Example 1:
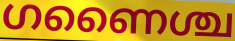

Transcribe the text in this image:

ഗണൈശ്ച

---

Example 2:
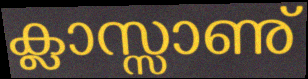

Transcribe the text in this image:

ക്ലാസ്സാണു്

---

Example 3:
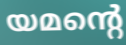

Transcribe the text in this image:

യമന്റെ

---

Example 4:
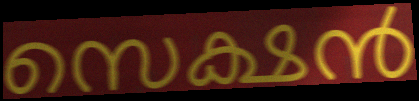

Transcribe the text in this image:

സെക്ഷൻ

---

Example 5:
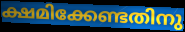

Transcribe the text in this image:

ക്ഷമിക്കേണ്ടതിനു